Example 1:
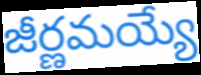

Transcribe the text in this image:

జీర్ణమయ్యే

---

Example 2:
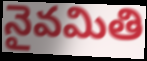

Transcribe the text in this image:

నైవమితి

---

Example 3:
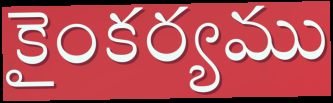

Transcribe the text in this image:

కైంకర్యము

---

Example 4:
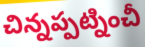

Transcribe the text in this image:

చిన్నప్పట్నించీ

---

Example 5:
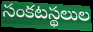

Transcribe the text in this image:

సంకటస్థలుల